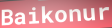
Baikonur